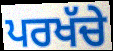
ਪਰਖੱਚੇ